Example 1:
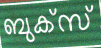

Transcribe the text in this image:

ബുക്സ്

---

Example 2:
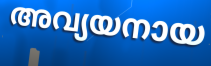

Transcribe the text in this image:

അവ്യയനായ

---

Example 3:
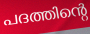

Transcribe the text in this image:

പദത്തിന്റെ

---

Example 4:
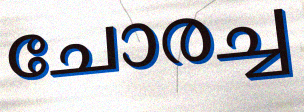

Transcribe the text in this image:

ചോരച്ച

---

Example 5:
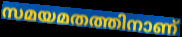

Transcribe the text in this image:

സമയമതത്തിനാണ്